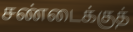
சண்டைக்குத்